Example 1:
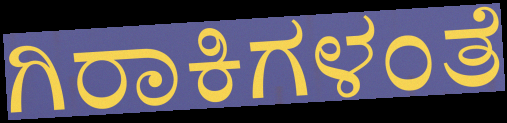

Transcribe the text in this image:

ಗಿರಾಕಿಗಳಂತೆ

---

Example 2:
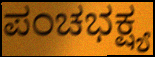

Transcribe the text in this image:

ಪಂಚಭಕ್ಷ್ಯ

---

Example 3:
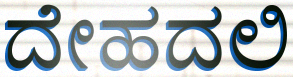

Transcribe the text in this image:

ದೇಹದಲಿ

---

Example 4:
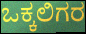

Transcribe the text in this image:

ಒಕ್ಕಲಿಗರ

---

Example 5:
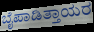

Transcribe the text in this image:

ಬೈಪಾಡಿತ್ತಾಯರ